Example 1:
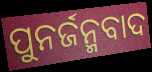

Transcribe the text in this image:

ପୁନର୍ଜନ୍ମବାଦ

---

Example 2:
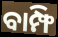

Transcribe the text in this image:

ବାମ୍ଫି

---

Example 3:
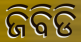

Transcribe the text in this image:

ଜିବିଡି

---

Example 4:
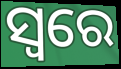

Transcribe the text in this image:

ସ୍ବରେ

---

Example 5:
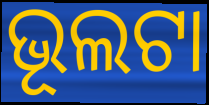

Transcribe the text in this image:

ଭୂଲଟା